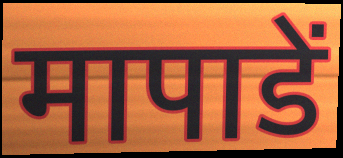
मापाडें